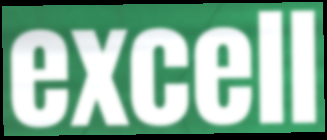
excell